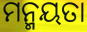
ମନ୍ମୟତା